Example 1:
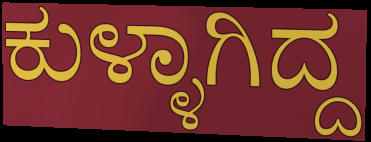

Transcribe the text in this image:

ಕುಳ್ಳಾಗಿದ್ದ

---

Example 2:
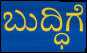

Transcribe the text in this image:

ಬುದ್ಧಿಗೆ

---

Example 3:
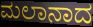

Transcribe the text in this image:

ಮಲಾನಾದ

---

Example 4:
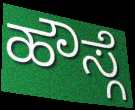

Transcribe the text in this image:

ಹೌಸ್ಗೆ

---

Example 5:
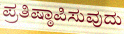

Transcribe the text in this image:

ಪ್ರತಿಷ್ಠಾಪಿಸುವುದು